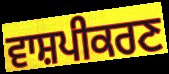
ਵਾਸ਼ਪੀਕਰਣ